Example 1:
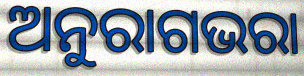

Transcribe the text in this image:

ଅନୁରାଗଭରା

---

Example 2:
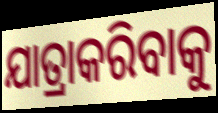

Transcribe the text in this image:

ଯାତ୍ରାକରିବାକୁ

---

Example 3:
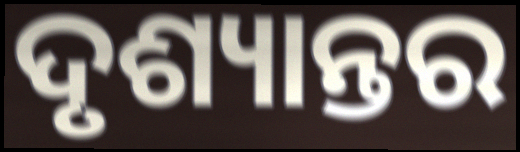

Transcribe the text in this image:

ଦୃଶ୍ୟାନ୍ତର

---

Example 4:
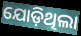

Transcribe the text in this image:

ଯୋଡ଼ିଥିଲା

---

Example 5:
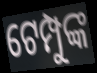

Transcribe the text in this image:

ଟେମ୍ପୁଙ୍କ